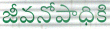
జీవనోపాధికి